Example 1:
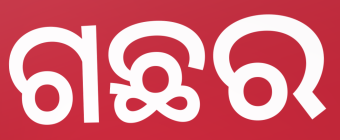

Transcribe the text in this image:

ଗଛର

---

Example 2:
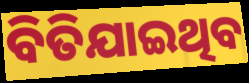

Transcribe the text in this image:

ବିତିଯାଇଥିବ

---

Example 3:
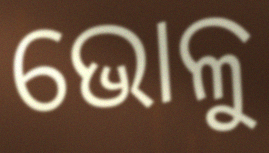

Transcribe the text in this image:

ଭୋଳୁ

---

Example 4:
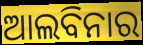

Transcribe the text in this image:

ଆଲବିନାର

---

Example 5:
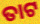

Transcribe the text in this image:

ତାଟ